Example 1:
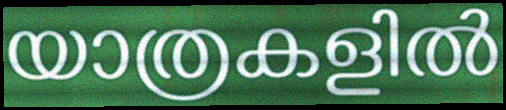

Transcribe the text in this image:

യാത്രകളിൽ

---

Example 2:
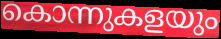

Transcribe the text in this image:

കൊന്നുകളയും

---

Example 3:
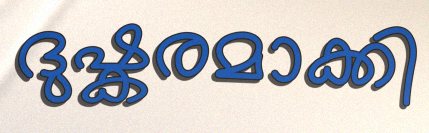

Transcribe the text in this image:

ദുഷ്കരമാക്കി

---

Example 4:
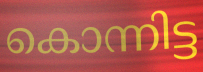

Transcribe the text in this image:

കൊന്നിട്ട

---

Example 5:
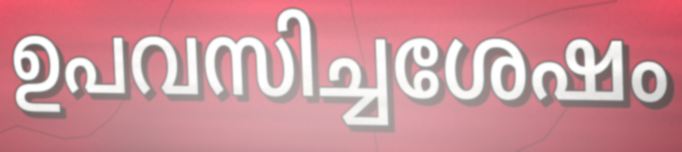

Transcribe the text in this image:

ഉപവസിച്ചശേഷം